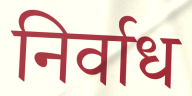
निर्वाध